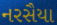
નરસૈયા